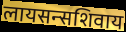
लायसन्सशिवाय